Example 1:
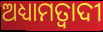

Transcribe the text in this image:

ଅଧ୍ୟାମତ୍ବାଦୀ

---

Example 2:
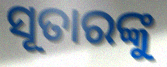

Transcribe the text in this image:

ସୂତାରଙ୍କୁ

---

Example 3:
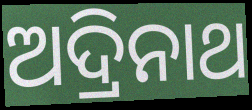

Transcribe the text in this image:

ଅଦ୍ରିନାଥ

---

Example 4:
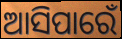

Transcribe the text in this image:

ଆସିପାରେଁ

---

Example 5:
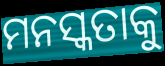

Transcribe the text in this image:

ମନସ୍କତାକୁ